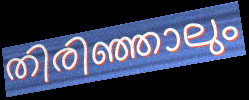
തിരിഞ്ഞാലും